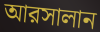
আরসালান